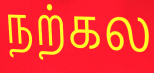
நற்கல